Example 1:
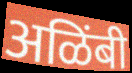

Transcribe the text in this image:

अळिंबी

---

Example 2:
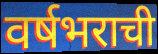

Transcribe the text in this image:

वर्षभराची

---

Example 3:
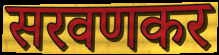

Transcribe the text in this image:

सरवणकर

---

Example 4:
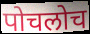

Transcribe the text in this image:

पोचलोच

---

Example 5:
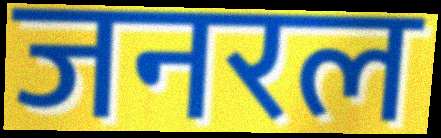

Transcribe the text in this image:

जनरल